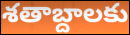
శతాబ్దాలకు